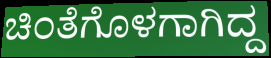
ಚಿಂತೆಗೊಳಗಾಗಿದ್ದ